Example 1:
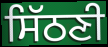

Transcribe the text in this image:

ਸਿੱਠਣੀ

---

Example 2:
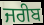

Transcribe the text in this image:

ਜਰੀਬ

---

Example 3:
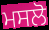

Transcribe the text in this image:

ਮਸਲੋ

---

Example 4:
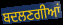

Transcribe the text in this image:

ਬਦਲਣਗੀਆਂ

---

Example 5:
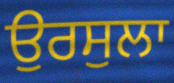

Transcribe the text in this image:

ਉਰਸੁਲਾ